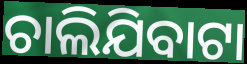
ଚାଲିଯିବାଟା